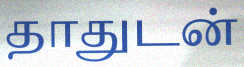
தாதுடன்